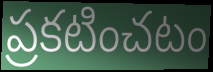
ప్రకటించటం